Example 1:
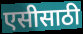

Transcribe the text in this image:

एसीसाठी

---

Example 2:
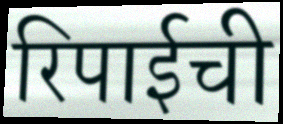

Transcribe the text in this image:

रिपाईची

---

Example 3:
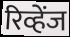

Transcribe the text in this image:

रिव्हेंज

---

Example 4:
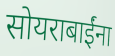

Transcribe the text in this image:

सोयराबाईंना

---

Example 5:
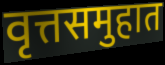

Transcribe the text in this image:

वृत्तसमुहात